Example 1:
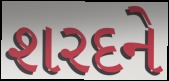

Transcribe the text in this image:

શરદને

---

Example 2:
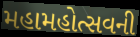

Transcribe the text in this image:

મહામહોત્સવની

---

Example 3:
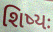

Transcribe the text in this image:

શિષ્યઃ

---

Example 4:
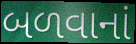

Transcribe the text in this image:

બળવાનાં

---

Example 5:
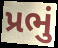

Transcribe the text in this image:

પ્રભું